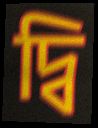
দ্বি